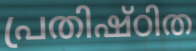
പ്രതിഷ്ഠിത